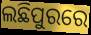
ଲଛିପୁରରେ